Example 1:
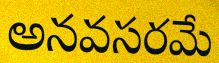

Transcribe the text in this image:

అనవసరమే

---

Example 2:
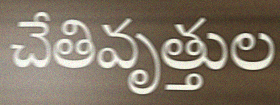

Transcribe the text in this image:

చేతివృత్తుల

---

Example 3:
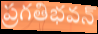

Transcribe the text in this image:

ప్రగతిభవన్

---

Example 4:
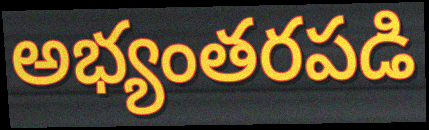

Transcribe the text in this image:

అభ్యంతరపడి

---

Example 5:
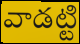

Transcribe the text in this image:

వాడట్టి